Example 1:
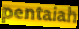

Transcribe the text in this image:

pentaiah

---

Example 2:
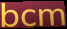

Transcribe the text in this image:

bcm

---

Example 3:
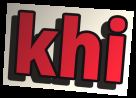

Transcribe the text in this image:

khi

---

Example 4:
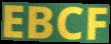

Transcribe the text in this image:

EBCF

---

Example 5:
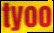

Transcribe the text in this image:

tyoo